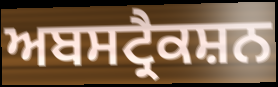
ਅਬਸਟ੍ਰੈਕਸ਼ਨ